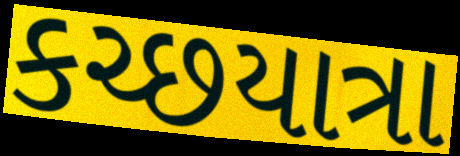
કચ્છયાત્રા